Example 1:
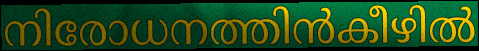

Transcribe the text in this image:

നിരോധനത്തിൻകീഴിൽ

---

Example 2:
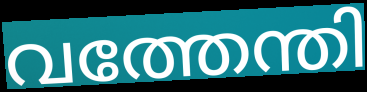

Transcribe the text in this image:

വത്തേന്തി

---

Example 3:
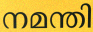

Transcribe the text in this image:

നമന്തി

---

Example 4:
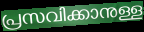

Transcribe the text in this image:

പ്രസവിക്കാനുള്ള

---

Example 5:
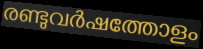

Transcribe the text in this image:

രണ്ടുവർഷത്തോളം